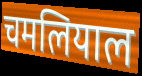
चमलियाल